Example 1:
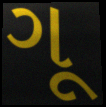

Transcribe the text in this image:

ગૂ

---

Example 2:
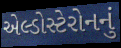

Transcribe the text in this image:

એલ્ડોસ્ટેરોનનું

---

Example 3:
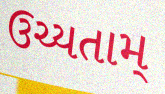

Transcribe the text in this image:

ઉચ્યતામ્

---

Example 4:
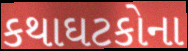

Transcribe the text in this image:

કથાઘટકોના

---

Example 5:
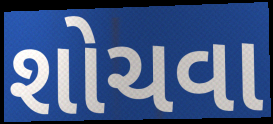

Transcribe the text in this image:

શોચવા